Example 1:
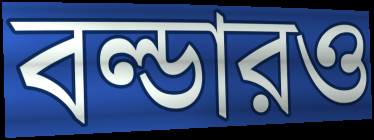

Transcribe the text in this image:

বল্ডারও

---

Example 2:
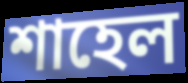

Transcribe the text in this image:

শাহেল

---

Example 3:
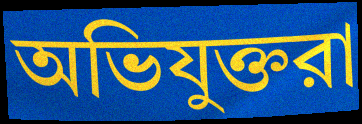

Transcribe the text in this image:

অভিযুক্তরা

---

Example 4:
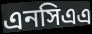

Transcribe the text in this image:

এনসিএএ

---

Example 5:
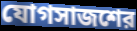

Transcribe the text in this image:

যোগসাজশের